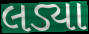
લડ્યા